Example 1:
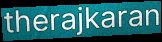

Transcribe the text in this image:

therajkaran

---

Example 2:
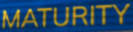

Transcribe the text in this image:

MATURITY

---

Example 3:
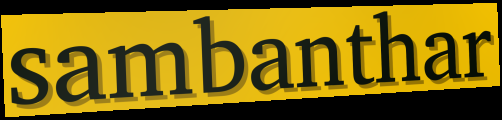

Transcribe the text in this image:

sambanthar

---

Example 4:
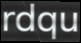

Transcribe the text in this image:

rdqu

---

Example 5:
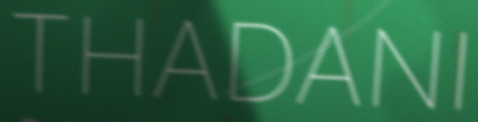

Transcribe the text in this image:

THADANI